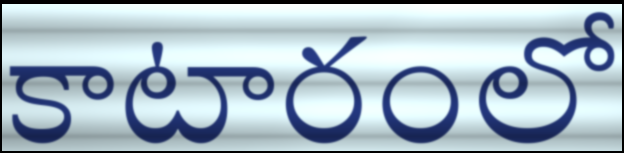
కాటారంలో